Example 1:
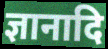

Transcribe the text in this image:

ज्ञानादि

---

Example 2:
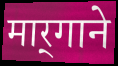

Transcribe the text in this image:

मार्गाने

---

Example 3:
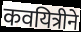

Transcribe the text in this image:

कवयित्रीने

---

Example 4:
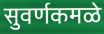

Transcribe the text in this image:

सुवर्णकमळे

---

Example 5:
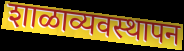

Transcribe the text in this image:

शाळाव्यवस्थापन